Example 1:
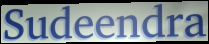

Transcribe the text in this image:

Sudeendra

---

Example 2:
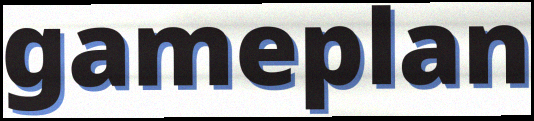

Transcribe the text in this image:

gameplan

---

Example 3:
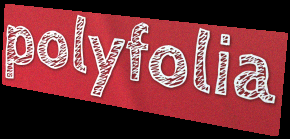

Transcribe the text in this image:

polyfolia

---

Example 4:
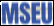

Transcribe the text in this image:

MSEU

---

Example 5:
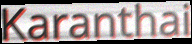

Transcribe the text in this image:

Karanthai